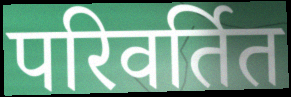
परिवर्तित